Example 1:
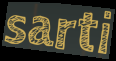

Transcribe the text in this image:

sarti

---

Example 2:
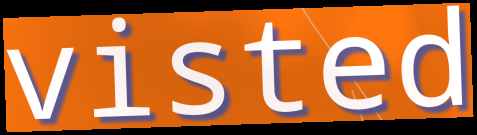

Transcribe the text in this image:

visted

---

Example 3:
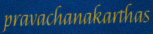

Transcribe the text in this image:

pravachanakarthas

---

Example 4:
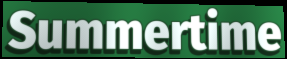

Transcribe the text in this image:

Summertime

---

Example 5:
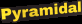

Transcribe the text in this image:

Pyramidal